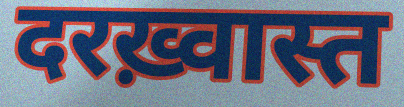
दरख़्वास्त